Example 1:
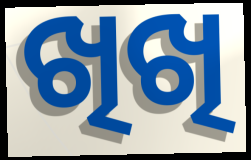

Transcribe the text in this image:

ଖିଖି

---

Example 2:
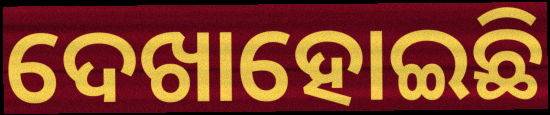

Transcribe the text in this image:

ଦେଖାହୋଇଛି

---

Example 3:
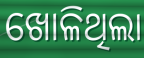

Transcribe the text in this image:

ଖୋଳିଥିଲା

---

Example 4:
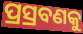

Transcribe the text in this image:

ପ୍ରସ୍ରବଣକୁ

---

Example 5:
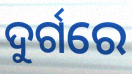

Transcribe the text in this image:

ଦୁର୍ଗରେ